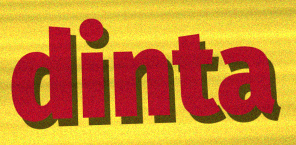
dinta